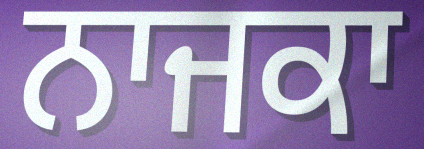
ਨਾਜਕਾ